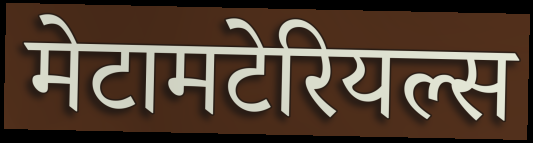
मेटामटेरियल्स